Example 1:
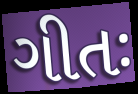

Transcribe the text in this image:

ગીતઃ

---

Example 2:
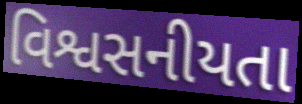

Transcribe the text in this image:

વિશ્વસનીયતા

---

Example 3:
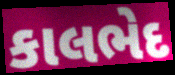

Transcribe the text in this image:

કાલભેદ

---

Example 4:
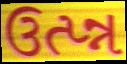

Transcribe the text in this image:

ઉત્પ્ન્ન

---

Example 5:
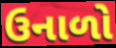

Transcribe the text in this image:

ઉનાળો